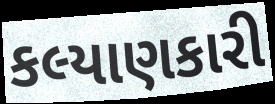
કલ્યાણકારી